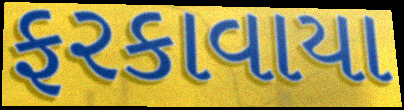
ફરકાવાયા